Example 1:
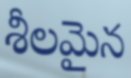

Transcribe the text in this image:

శీలమైన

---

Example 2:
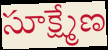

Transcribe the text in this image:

సూక్ష్మేణ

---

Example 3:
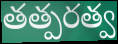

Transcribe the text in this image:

తత్పరత్వ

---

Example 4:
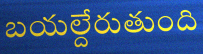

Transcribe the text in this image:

బయల్దేరుతుంది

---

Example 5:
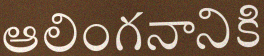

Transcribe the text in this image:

ఆలింగనానికి